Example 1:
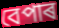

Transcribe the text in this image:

বেপাৰ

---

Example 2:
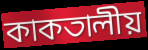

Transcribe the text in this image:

কাকতালীয়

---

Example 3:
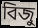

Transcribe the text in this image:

বিজু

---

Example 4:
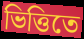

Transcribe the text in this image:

ভিত্তিতে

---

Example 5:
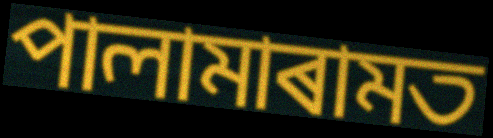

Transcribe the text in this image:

পালামাৰামত